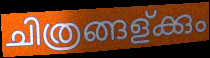
ചിത്രങ്ങള്ക്കും